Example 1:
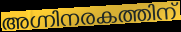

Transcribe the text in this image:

അഗ്നിനരകത്തിന്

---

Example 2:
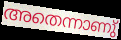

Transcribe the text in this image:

അതെന്നാണു്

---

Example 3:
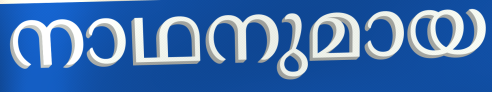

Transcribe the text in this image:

നാഥനുമായ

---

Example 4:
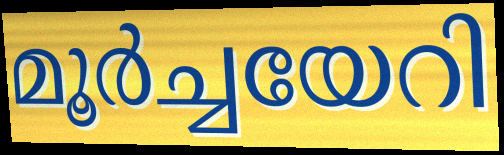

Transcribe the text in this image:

മൂർച്ചയേറി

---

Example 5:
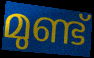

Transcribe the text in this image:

മുണ്ട്